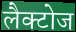
लैक्टोज